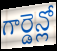
గార్డెన్లో